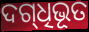
ଦଗ୍‌ଧିଭୂତ